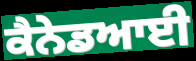
ਕੈਨੇਡਆਈ